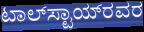
ಟಾಲ್‌ಸ್ಟಾಯ್‌ರವರ